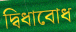
দ্বিধাবোধ